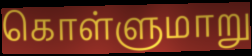
கொள்ளுமாறு